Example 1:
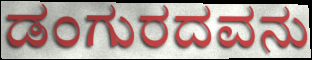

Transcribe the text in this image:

ಡಂಗುರದವನು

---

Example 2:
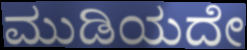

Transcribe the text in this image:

ಮುಡಿಯದೇ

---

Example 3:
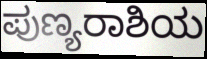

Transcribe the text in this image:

ಪುಣ್ಯರಾಶಿಯ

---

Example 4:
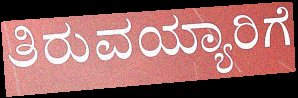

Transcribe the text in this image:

ತಿರುವಯ್ಯಾರಿಗೆ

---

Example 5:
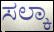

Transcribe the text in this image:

ಸಲ್ಕಾ